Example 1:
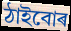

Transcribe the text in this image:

ঠাইবোৰ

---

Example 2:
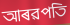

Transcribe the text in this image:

আৰৱপতি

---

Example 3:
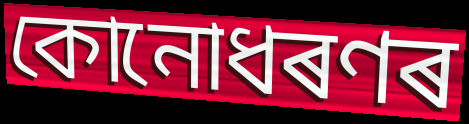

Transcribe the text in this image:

কোনোধৰণৰ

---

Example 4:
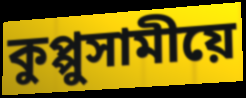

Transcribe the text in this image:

কুপ্পুসামীয়ে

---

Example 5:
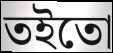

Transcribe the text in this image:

তইতো